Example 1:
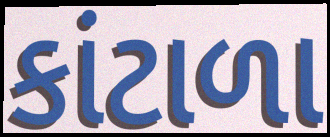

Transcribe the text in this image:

કાંટાળા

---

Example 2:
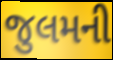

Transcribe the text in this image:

જુલમની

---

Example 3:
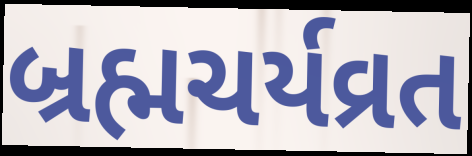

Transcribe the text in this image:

બ્રહ્મચર્યવ્રત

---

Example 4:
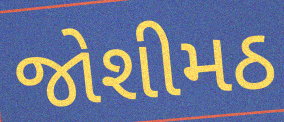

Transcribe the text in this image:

જોશીમઠ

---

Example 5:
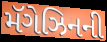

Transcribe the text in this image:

મૅગેઝિનની